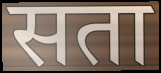
सता